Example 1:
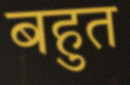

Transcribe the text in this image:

बहुत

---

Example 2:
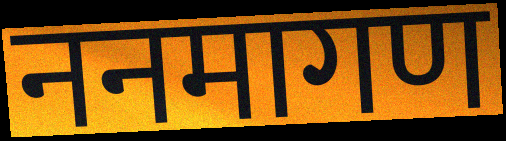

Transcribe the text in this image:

ननमागण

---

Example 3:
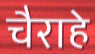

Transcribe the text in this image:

चैराहे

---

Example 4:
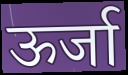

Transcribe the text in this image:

ऊर्जा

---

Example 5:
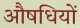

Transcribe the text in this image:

औषधियों